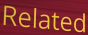
Related